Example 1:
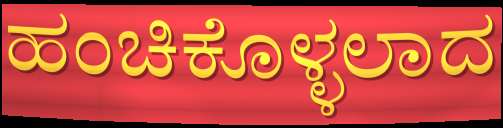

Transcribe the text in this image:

ಹಂಚಿಕೊಳ್ಳಲಾದ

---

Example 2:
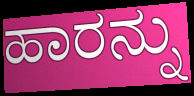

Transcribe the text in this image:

ಹಾರನ್ನು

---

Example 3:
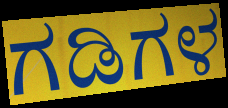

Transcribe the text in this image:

ಗಡಿಗಳ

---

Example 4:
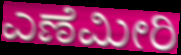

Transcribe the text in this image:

ಎಣೆಮೀರಿ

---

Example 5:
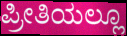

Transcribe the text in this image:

ಪ್ರೀತಿಯಲ್ಲೂ